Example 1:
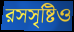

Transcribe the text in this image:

রসসৃষ্টিও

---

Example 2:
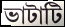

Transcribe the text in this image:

ভাটাটি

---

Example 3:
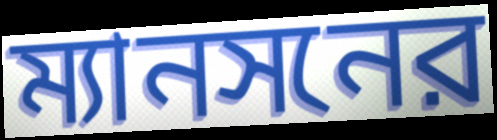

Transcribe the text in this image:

ম্যানসনের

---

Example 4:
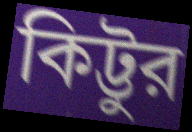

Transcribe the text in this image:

কিট্টুর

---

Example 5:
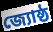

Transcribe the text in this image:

জ্যোষ্ঠ